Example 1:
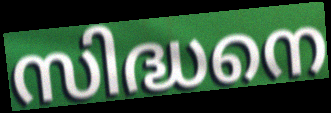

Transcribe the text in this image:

സിദ്ധനെ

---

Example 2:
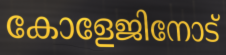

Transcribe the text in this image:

കോളേജിനോട്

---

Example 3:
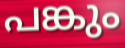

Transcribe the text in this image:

പങ്കും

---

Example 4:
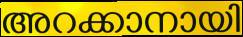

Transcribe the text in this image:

അറക്കാനായി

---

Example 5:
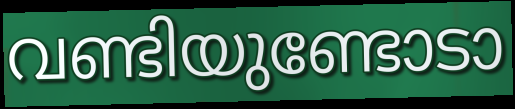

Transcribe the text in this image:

വണ്ടിയുണ്ടോടാ